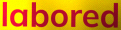
labored